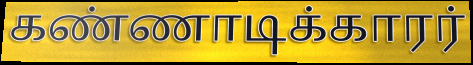
கண்ணாடிக்காரர்